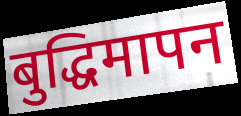
बुद्धिमापन